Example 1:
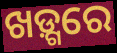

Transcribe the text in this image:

ଖଡ଼୍ଗରେ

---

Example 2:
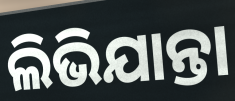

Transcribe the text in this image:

ଲିଭିଯାନ୍ତା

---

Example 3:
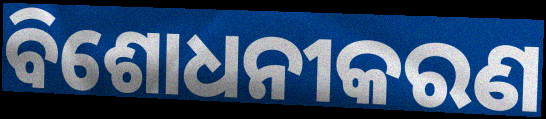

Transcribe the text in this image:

ବିଶୋଧନୀକରଣ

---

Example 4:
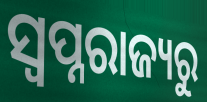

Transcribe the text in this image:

ସ୍ୱପ୍ନରାଜ୍ୟରୁ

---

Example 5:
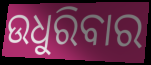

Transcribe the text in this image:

ଉଧୁରିବାର